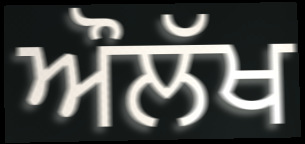
ਔਲੱਖ